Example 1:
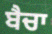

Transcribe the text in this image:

ਬੈਚਾ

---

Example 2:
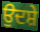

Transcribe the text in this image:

ਉਦਸ਼ੇ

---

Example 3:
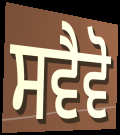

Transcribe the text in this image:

ਸਵੈਵੋ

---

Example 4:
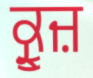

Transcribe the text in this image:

ਕ੍ਰੂਜ਼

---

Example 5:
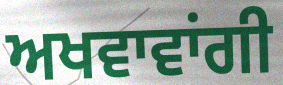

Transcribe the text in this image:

ਅਖਵਾਵਾਂਗੀ